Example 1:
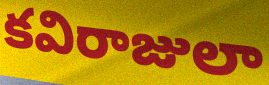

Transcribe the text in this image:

కవిరాజులా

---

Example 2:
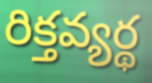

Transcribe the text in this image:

రిక్తవ్యర్థ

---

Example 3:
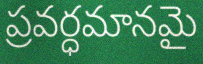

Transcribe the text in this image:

ప్రవర్ధమానమై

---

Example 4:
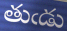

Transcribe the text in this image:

తుఁడు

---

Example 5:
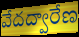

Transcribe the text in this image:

వేదద్వారేణ